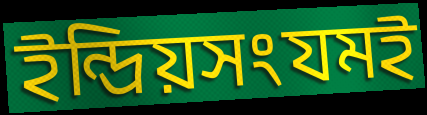
ইন্দ্রিয়সংযমই